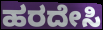
ಹರದೇಸಿ